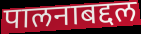
पालनाबद्दल